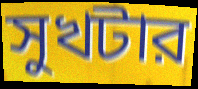
সুখটার